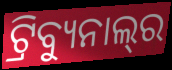
ଟ୍ରିବ୍ୟୁନାଲ୍‍ର